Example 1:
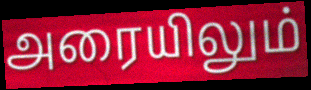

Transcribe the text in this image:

அரையிலும்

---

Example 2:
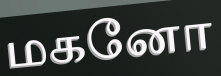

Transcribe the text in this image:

மகனோ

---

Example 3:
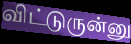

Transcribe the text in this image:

விட்டுருன்னு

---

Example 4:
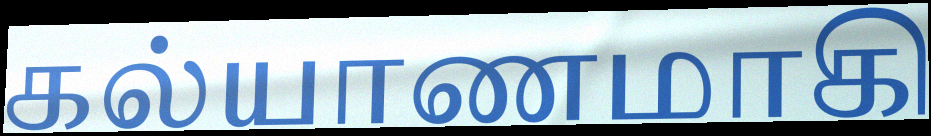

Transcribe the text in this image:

கல்யாணமாகி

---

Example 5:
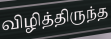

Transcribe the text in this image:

விழித்திருந்த